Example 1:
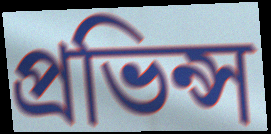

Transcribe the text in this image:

প্ৰভিন্স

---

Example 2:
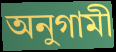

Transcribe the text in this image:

অনুগামী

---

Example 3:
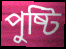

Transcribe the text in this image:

পুষ্টি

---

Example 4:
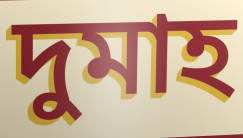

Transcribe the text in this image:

দুমাহ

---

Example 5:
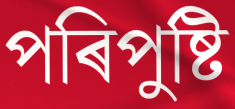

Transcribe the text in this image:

পৰিপুষ্টি